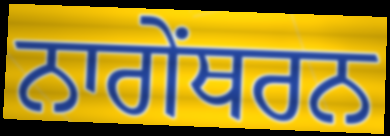
ਨਾਗੇਂਥਰਨ